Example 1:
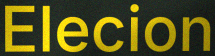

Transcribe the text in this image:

Elecion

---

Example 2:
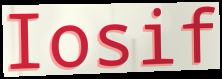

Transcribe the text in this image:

Iosif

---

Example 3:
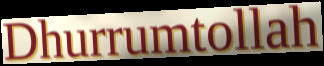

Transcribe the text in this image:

Dhurrumtollah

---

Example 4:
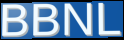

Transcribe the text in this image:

BBNL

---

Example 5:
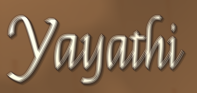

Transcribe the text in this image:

Yayathi